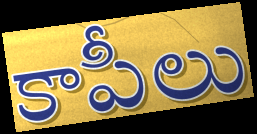
కాపీలు